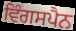
ਵਿੰਗਸਪੈਨ